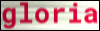
gloria